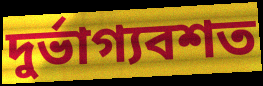
দুর্ভাগ্যবশত